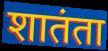
शातंता